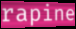
rapine